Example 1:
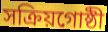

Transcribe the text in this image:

সক্রিয়গোষ্ঠী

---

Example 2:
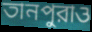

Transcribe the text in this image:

তানপুরাও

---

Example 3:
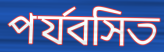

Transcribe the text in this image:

পর্যবসিত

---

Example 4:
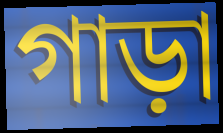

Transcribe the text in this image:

গাড়া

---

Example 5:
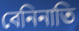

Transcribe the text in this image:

বেনিনাতি